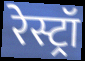
रेस्ट्रॉ